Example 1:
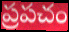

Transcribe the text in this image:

ప్రపచం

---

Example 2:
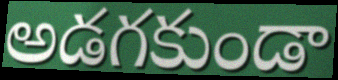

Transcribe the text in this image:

అడగకుండా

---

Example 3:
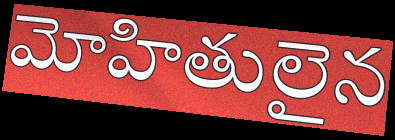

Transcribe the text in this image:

మోహితులైన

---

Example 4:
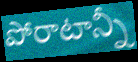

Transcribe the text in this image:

పోరాటాన్నీ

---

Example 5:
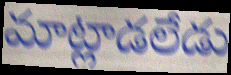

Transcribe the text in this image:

మాట్లాడలేడు